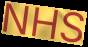
NHS